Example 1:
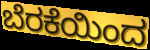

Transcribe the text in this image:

ಬೆರಕೆಯಿಂದ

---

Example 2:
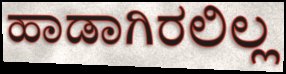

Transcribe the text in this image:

ಹಾಡಾಗಿರಲಿಲ್ಲ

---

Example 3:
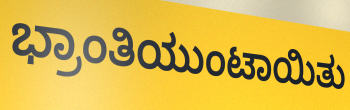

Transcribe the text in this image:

ಭ್ರಾಂತಿಯುಂಟಾಯಿತು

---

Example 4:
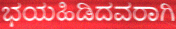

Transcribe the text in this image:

ಭಯಹಿಡಿದವರಾಗಿ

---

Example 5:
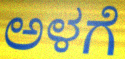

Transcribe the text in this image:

ಅಳಗೆ